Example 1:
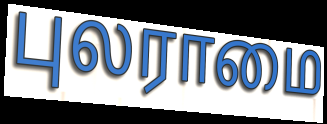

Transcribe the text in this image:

புலராமை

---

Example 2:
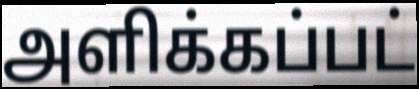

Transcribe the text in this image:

அளிக்கப்பட்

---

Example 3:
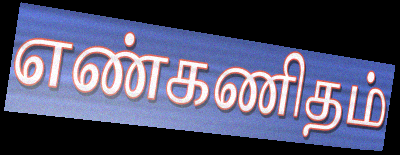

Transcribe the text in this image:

எண்கணிதம்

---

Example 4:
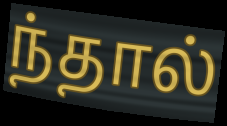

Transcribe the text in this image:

ந்தால்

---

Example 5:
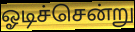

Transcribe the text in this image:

ஓடிச்சென்று